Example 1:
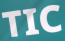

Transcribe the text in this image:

TIC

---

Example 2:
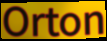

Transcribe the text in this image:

Orton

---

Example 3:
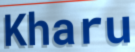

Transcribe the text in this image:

Kharu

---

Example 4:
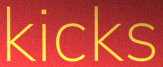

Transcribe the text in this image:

kicks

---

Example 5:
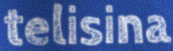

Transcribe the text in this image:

telisina